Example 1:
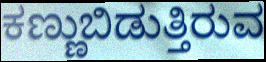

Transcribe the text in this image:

ಕಣ್ಣುಬಿಡುತ್ತಿರುವ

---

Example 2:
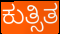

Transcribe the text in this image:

ಕುತ್ಸಿತ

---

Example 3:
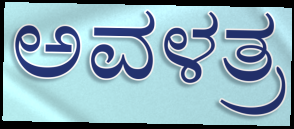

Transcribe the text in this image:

ಅವಳತ್ರ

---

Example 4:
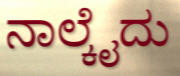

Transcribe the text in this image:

ನಾಲ್ಕೈದು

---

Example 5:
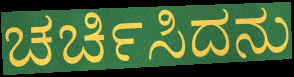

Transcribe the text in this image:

ಚರ್ಚಿಸಿದನು